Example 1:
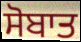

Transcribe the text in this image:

ਸੋਬਾਤ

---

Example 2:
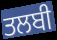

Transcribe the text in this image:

ਤਲਬੀ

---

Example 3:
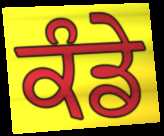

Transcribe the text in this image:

ਕੰਡੇ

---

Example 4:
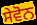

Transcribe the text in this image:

ਸੇਵੋਨ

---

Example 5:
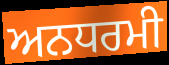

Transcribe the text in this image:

ਅਨਧਰਮੀ